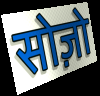
सोज़ो